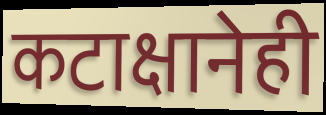
कटाक्षानेही